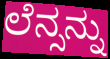
ಲೆನ್ಸನ್ನು